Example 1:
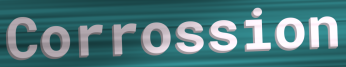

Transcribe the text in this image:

Corrossion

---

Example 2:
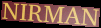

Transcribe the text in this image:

NIRMAN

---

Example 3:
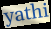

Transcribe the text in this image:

yathi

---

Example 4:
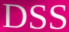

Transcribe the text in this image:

DSS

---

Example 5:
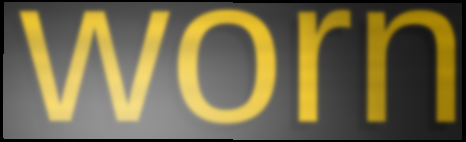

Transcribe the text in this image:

worn